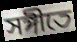
সঙ্গীতে